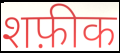
शफ़ीक